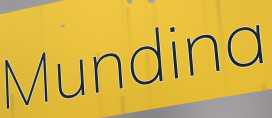
Mundina